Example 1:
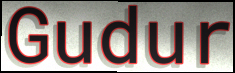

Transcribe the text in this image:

Gudur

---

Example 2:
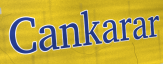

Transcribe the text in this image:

Cankarar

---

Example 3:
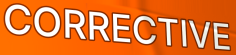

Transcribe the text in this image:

CORRECTIVE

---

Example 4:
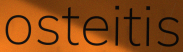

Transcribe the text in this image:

osteitis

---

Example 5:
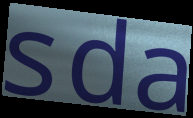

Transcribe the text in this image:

sda